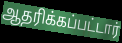
ஆதரிக்கப்பட்டார்